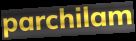
parchilam